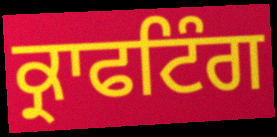
ਕ੍ਰਾਫਟਿੰਗ